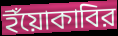
ইঁয়োকাবির